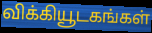
விக்கியூடகங்கள்